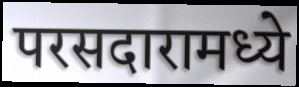
परसदारामध्ये